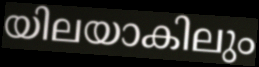
യിലയാകിലും